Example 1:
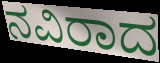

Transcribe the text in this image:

ನವಿರಾದ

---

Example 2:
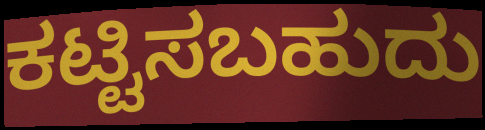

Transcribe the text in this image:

ಕಟ್ಟಿಸಬಹುದು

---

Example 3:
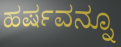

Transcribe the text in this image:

ಹರ್ಷವನ್ನೂ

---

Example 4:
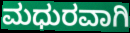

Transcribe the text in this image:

ಮಧುರವಾಗಿ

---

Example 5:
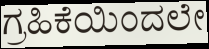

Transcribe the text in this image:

ಗ್ರಹಿಕೆಯಿಂದಲೇ